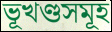
ভূখণ্ডসমূহ